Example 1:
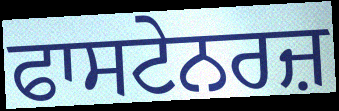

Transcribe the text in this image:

ਫਾਸਟੇਨਰਜ਼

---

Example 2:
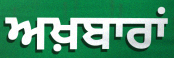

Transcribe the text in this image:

ਅਖ਼ਬਾਰਾਂ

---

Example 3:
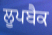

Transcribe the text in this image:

ਲੂਪਬੈਕ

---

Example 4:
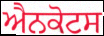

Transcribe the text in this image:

ਐਨਕੋਟਸ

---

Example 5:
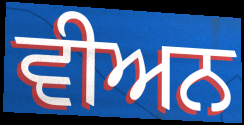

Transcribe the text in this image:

ਵੀਅਨ